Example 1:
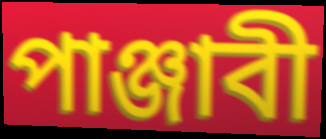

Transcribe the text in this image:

পাঞ্জাবী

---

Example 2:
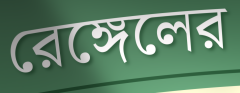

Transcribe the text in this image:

রেঙ্গেলের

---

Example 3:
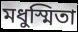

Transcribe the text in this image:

মধুস্মিতা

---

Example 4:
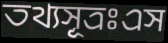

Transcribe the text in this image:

তথ্যসূত্রঃএস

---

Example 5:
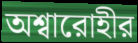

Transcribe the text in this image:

অশ্বারোহীর